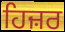
ਹਿਜ਼ਰ